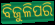
ବିଜୁଳିପରି